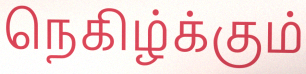
நெகிழ்க்கும்